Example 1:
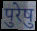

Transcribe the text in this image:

पुरेषु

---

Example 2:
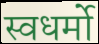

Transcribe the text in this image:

स्वधर्मो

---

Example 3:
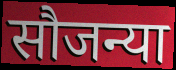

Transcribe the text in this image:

सौजन्या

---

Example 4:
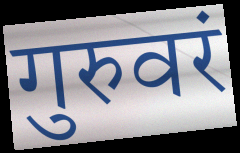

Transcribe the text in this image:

गुरुवरं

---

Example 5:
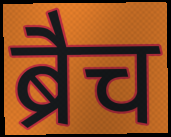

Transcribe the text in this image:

ब्रैच